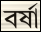
বর্ষা